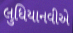
લુધિયાનવીએ